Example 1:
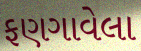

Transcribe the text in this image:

ફણગાવેલા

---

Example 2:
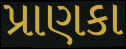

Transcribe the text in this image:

પ્રાણકા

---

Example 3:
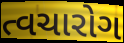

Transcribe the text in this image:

ત્વચારોગ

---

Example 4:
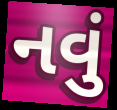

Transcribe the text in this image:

નવું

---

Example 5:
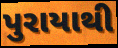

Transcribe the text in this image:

પુરાયાથી